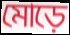
মোড়ে